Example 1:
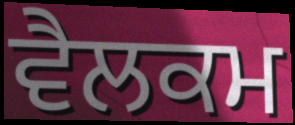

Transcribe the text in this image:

ਵੈਲਕਮ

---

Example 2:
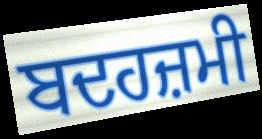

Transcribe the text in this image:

ਬਦਹਜ਼ਮੀ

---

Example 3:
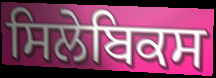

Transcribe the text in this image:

ਸਿਲੇਬਿਕਸ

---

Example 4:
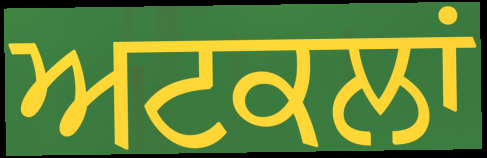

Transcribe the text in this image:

ਅਟਕਲਾਂ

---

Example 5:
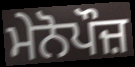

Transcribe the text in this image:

ਮੇਨੋਪੌਜ਼